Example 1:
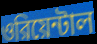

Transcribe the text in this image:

ওরিয়েন্টাল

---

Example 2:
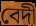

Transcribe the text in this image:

বেদী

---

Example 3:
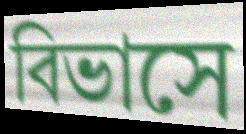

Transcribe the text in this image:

বিভাসে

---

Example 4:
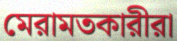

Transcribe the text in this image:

মেরামতকারীরা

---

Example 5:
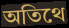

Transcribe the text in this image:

অতিথে